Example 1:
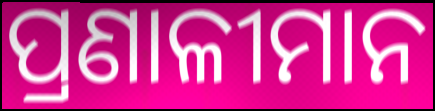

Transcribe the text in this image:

ପ୍ରଣାଳୀମାନ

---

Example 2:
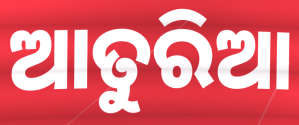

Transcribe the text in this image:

ଆତୁରିଆ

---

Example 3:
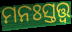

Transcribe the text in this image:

ମନଃସ୍ତତ୍ତ୍ଵ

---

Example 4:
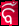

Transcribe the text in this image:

ବିଁ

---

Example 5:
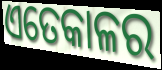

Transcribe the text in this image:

ଏତେକାଳର